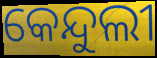
କେନ୍ଦୁଲୀ